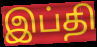
இப்தி